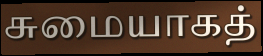
சுமையாகத்